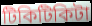
টিকিটিকিটা